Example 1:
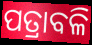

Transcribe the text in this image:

ପତ୍ରାବଳି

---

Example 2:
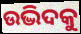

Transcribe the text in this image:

ଉଦ୍ଭିଦକୁ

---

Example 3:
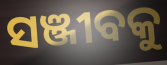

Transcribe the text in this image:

ସଞ୍ଜୀବକୁ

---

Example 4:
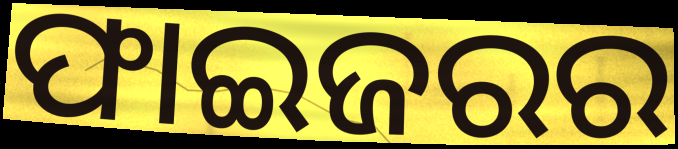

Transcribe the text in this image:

ଫାଇଜରର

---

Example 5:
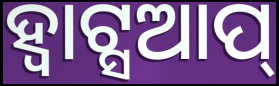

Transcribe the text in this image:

ହ୍ବାଟ୍ସଆପ୍